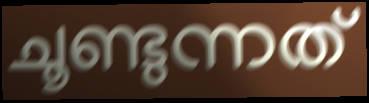
ചൂണ്ടുന്നത്